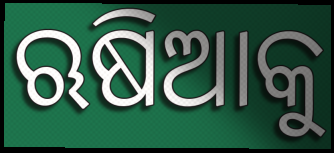
ଋଷିଆକୁ